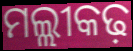
ମଲ୍ଲୀକଢ଼